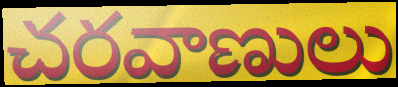
చరవాణులు